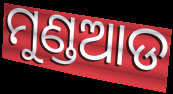
ମୁଣ୍ଡଆଡ